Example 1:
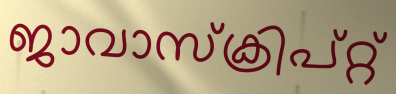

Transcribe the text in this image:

ജാവാസ്ക്രിപ്റ്റ്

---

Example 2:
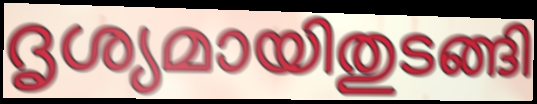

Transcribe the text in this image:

ദൃശ്യമായിതുടങ്ങി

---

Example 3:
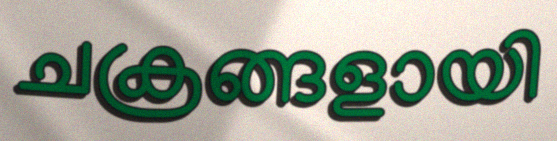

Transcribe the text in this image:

ചക്രങ്ങളായി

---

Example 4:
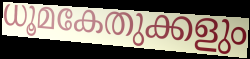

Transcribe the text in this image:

ധൂമകേതുക്കളും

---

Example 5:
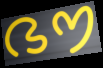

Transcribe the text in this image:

ഭൗ